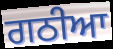
ਗਠੀਆ